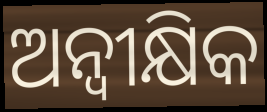
ଅନ୍ୱୀକ୍ଷିକ